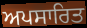
ਅਪਸਾਰਿਤ